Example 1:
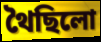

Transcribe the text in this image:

থৈছিলো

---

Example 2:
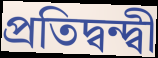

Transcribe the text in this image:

প্ৰতিদ্বন্দ্বী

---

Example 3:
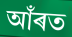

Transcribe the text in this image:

আঁৰত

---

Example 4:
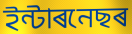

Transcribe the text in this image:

ইন্টাৰনেছৰ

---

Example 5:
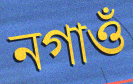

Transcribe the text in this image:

নগাওঁ